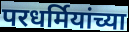
परधर्मियांच्या